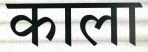
काला